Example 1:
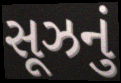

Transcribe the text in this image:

સૂઝનું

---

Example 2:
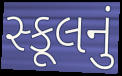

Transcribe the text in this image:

સ્કૂલનું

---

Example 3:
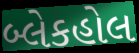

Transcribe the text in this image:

બ્લેકહોલ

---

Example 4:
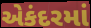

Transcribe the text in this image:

એકંદરમાં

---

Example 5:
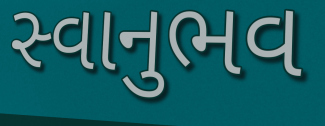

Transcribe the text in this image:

સ્વાનુભવ